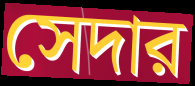
সেদার